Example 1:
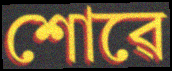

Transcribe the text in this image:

শোৱে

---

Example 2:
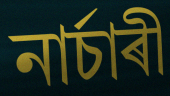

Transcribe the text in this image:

নাৰ্চাৰী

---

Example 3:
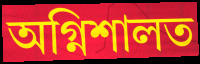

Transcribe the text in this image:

অগ্নিশালত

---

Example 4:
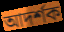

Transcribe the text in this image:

আদৰ্শক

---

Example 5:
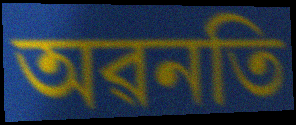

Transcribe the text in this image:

অৱনতি